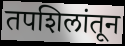
तपशिलांतून